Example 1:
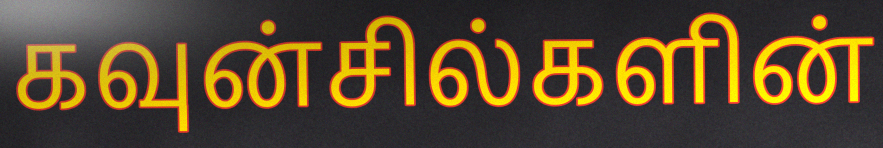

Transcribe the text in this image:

கவுன்சில்களின்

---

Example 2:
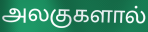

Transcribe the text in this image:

அலகுகளால்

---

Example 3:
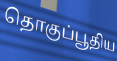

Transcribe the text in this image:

தொகுப்பூதிய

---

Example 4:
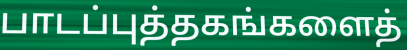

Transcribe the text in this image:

பாடப்புத்தகங்களைத்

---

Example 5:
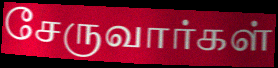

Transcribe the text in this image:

சேருவார்கள்